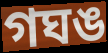
গঘঙ